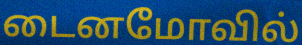
டைனமோவில்